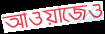
আওয়াজেও